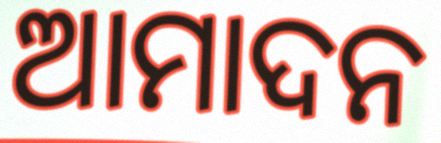
ଆମାଦନ